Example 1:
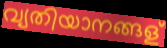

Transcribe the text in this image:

വ്യതിയാനങ്ങള്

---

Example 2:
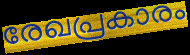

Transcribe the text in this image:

രേഖപ്രകാരം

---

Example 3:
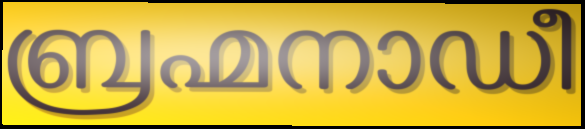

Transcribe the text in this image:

ബ്രഹ്മനാഡീ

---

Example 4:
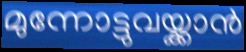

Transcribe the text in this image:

മുന്നോട്ടുവയ്ക്കാൻ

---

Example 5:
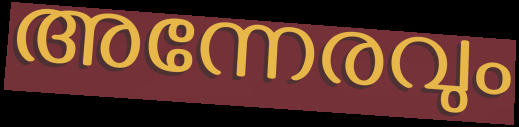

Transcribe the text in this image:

അന്നേരവും